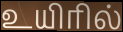
உயிரில்